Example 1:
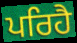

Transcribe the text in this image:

ਪਰਿਹੈ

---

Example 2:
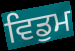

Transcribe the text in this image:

ਵਿਡੁਮ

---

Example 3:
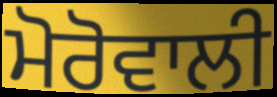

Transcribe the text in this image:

ਮੋਰੋਵਾਲੀ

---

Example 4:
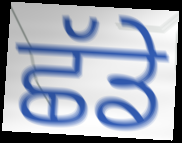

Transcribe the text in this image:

ਛੱਡੇ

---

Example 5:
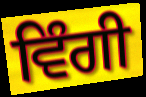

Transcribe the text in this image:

ਵਿੰਗੀ